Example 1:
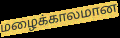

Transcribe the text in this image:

மழைக்காலமான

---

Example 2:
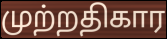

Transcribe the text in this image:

முற்றதிகார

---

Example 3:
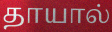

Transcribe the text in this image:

தாயால்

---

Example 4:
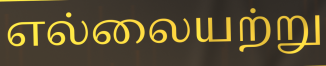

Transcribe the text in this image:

எல்லையற்று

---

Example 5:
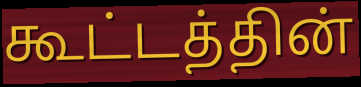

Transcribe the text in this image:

கூட்டத்தின்